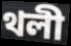
থলী